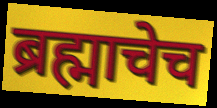
ब्रह्माचेच